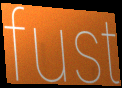
fust